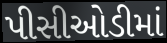
પીસીઓડીમાં